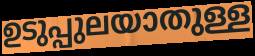
ഉടുപ്പുലയാതുള്ള